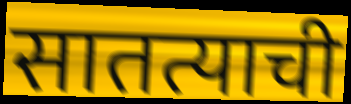
सातत्याची